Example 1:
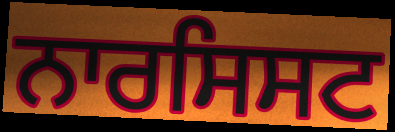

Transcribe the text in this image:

ਨਾਰਸਿਸਟ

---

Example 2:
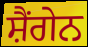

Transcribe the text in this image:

ਸ਼ੈਂਗੇਨ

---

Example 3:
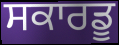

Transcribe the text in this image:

ਸਕਾਰਡੂ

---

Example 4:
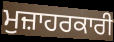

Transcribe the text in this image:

ਮੁਜ਼ਾਹਰਕਾਰੀ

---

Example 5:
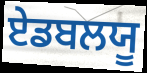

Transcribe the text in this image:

ਏਡਬਲਯੂ